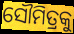
ସୌମିତ୍ରକୁ